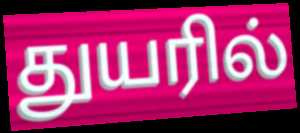
துயரில்